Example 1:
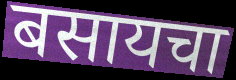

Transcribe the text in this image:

बसायचा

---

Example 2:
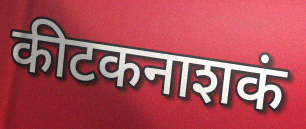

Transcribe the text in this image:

कीटकनाशकं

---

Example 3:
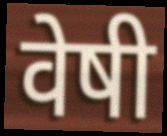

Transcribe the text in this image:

वेषी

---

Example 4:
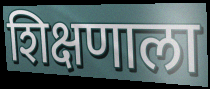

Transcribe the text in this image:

शिक्षणाला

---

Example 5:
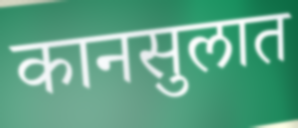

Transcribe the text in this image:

कानसुलात